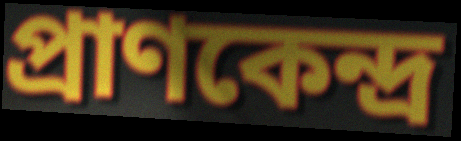
প্ৰাণকেন্দ্ৰ